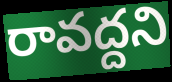
రావద్దని